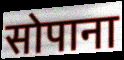
सोपाना